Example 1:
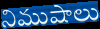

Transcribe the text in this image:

నిముషాలు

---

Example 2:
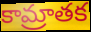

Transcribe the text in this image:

కామ్రాతక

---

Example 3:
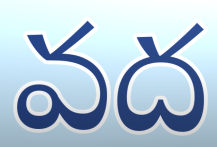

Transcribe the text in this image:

వద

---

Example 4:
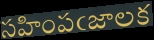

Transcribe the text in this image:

సహింపఁజాలక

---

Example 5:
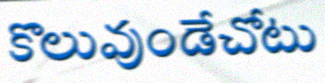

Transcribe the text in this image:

కొలువుండేచోటు